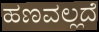
ಹಣವಲ್ಲದೆ